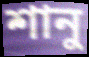
শানু